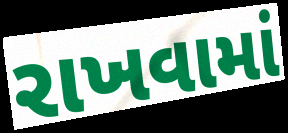
રાખવામાં